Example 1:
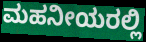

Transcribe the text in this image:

ಮಹನೀಯರಲ್ಲಿ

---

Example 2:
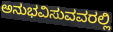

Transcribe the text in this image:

ಅನುಭವಿಸುವವರಲ್ಲಿ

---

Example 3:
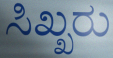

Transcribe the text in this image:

ಸಿಖ್ಖರು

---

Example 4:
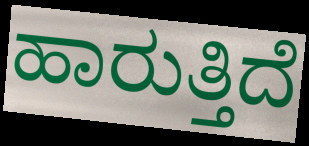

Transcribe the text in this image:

ಹಾರುತ್ತಿದೆ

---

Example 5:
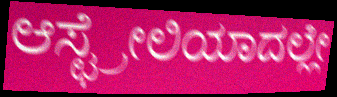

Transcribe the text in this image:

ಆಸ್ಟ್ರೇಲಿಯಾದಲ್ಲೇ